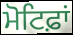
ਮੋਟਿਫ਼ਾਂ